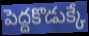
పెద్దకొడుక్కే